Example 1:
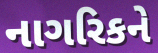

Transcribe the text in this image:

નાગરિકને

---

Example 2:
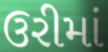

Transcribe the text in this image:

ઉરીમાં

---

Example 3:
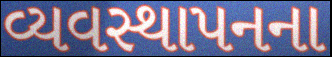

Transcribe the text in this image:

વ્યવસ્થાપનના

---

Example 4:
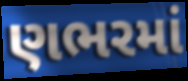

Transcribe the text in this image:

ણભરમાં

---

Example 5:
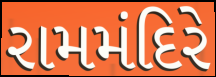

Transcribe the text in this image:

રામમંદિરે